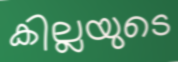
കില്ലയുടെ